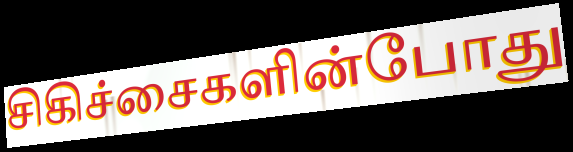
சிகிச்சைகளின்போது